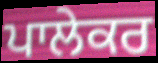
ਪਾਲੇਕਰ